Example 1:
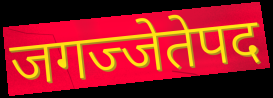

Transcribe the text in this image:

जगज्जेतेपद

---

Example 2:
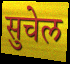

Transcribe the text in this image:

सुचेल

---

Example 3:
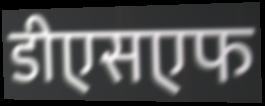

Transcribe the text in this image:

डीएसएफ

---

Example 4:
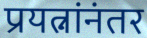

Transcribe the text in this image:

प्रयत्नांनंतर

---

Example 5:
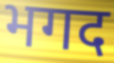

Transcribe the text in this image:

भगद